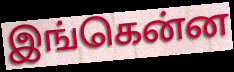
இங்கென்ன